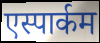
एस्पार्कम